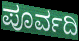
ಪೂರ್ವದಿ